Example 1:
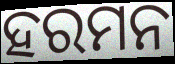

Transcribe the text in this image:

ହରମନ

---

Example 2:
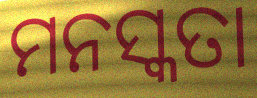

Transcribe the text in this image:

ମନସ୍କତା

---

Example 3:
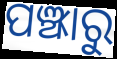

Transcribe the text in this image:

ପଞ୍ଝାରୁ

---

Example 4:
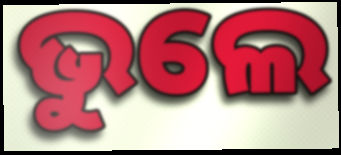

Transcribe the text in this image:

ଭୁଲେ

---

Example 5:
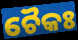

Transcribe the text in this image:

ଚୈକଃ